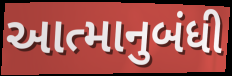
આત્માનુબંધી